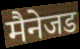
मैनेजड